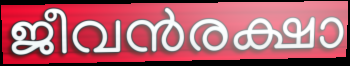
ജീവൻരക്ഷാ